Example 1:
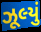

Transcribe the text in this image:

ઝૂલ્યું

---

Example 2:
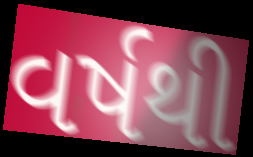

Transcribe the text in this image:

વર્ષથી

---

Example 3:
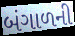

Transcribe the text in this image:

બંગાળની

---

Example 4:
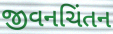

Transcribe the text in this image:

જીવનચિંતન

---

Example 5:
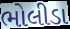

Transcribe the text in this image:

ભોલીડા